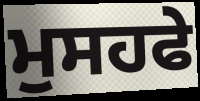
ਮੁਸਹਫੇ